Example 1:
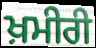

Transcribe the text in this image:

ਖ਼ਮੀਰੀ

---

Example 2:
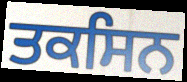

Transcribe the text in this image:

ਤਕਸਿਨ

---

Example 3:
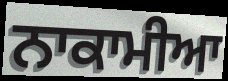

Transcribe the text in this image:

ਨਾਕਾਮੀਆ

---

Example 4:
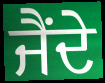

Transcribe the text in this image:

ਜੈਂਦੇ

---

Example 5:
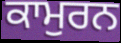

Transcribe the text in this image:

ਕਾਮੁਰਨ